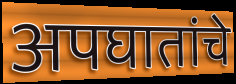
अपघातांचे